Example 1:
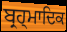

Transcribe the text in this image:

ਬ੍ਰਹ੍ਮਾਦਿਕ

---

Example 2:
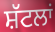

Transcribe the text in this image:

ਸ਼ੱਟਲਾਂ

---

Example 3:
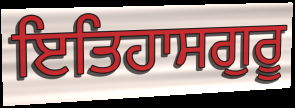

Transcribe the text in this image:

ਇਤਿਹਾਸਗੁਰੂ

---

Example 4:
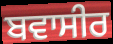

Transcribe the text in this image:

ਬਵਾਸੀਰ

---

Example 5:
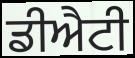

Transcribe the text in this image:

ਡੀਐਟੀ